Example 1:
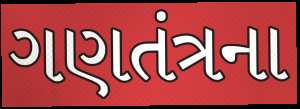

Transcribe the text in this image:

ગણતંત્રના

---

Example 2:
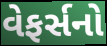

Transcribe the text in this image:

વેફર્સનો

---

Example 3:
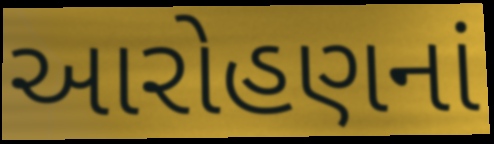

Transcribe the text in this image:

આરોહણનાં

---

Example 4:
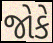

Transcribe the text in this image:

જોકે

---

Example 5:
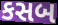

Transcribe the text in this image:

કસબ